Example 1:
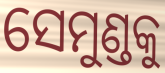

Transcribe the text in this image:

ସେମୁଣ୍ଡକୁ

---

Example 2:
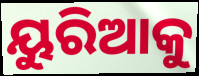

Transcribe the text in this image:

ୟୁରିଆକୁ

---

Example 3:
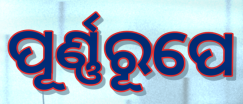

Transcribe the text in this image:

ପୂର୍ଣ୍ଣରୂପେ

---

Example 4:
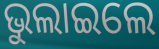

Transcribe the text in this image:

ଭୁଲାଇଲେ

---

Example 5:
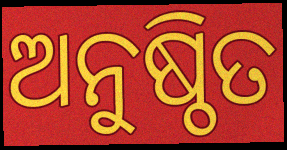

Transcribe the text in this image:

ଅନୁଷ୍ଠିତ